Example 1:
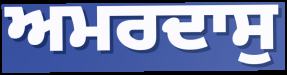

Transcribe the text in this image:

ਅਮਰਦਾਸੁ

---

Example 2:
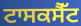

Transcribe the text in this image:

ਟਾਸਕਸੈੱਟ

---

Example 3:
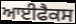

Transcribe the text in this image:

ਆਈਫੈਕਸ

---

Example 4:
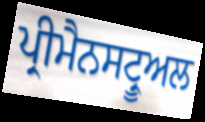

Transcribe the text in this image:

ਪ੍ਰੀਮੈਨਸਟ੍ਰੂਅਲ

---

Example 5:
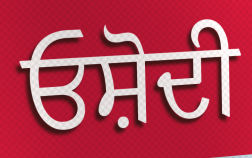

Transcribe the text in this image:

ਓਸ਼ੋਦੀ